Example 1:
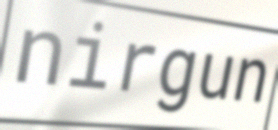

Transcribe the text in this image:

nirgun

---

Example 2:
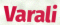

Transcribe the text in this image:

Varali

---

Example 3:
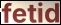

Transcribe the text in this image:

fetid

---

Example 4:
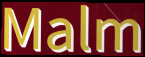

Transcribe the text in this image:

Malm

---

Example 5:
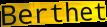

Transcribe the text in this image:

Berthet